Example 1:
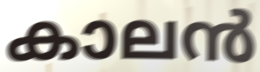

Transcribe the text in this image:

കാലൻ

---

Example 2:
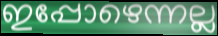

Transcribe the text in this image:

ഇപ്പോഴെന്നല്ല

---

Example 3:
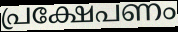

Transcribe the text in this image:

പ്രക്ഷേപണം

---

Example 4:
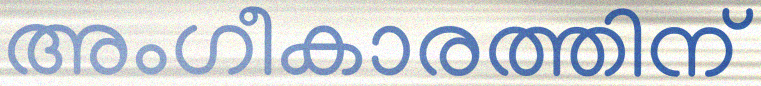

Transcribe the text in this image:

അംഗീകാരത്തിന്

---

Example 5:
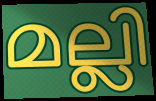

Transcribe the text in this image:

മല്ലി